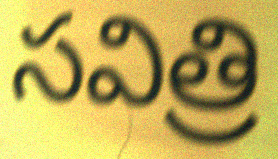
సవిత్రి